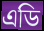
এডি